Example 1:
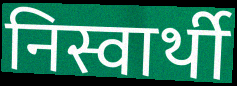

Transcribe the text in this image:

निस्वार्थी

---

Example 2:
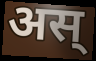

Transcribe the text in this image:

अस्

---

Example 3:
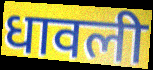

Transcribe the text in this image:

धावली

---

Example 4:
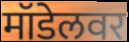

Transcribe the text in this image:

मॉडेलवर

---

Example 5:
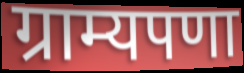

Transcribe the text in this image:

ग्राम्यपणा